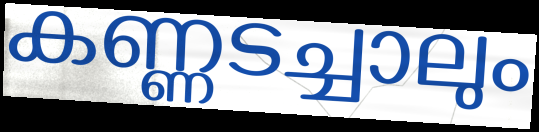
കണ്ണടച്ചാലും